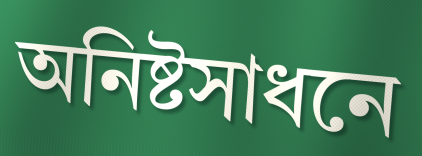
অনিষ্টসাধনে